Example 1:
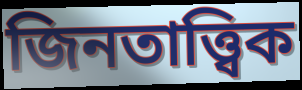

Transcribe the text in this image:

জিনতাত্ত্বিক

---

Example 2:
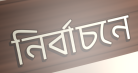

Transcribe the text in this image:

নির্বাচনে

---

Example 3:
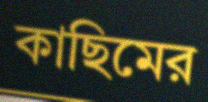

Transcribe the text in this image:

কাছিমের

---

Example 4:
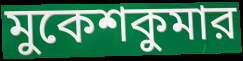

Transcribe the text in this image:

মুকেশকুমার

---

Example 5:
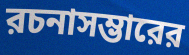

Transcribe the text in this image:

রচনাসম্ভারের